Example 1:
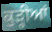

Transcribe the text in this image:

ਕੁੜ੍ਹੀਆਂ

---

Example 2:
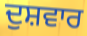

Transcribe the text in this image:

ਦੁਸ਼ਵਾਰ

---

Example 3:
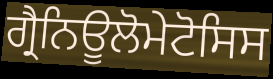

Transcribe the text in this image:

ਗ੍ਰੈਨਿਊਲੋਮੇਟੋਸਿਸ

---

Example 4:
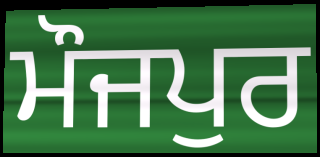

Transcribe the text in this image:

ਮੌਜਪੁਰ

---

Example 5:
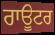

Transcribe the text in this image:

ਰਾਊਟਰ